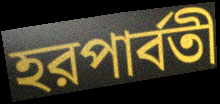
হরপার্বতী